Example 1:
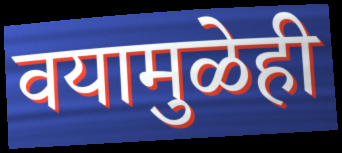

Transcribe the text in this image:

वयामुळेही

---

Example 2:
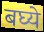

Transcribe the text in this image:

बघ्ये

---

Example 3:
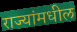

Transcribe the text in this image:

राज्यांमधील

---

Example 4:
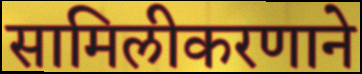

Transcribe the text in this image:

सामिलीकरणाने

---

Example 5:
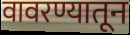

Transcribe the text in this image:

वावरण्यातून